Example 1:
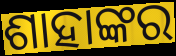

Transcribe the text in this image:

ଶାହାଙ୍କର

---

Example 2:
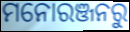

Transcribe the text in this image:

ମନୋରଞ୍ଜନରୁ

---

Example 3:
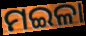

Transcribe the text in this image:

ମଇଳା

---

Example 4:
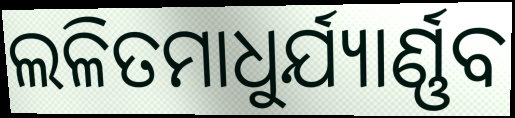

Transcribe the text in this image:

ଲଳିତମାଧୁର୍ଯ୍ୟାର୍ଣ୍ଣବ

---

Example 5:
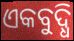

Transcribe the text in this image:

ଏକବୁଦ୍ଧି